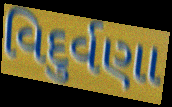
વિદુર્વણા